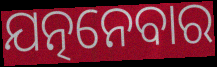
ଯତ୍ନନେବାର